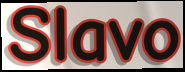
Slavo